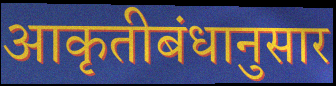
आकृतीबंधानुसार